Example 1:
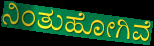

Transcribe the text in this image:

ನಿಂತುಹೋಗಿವೆ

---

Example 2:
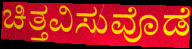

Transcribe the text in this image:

ಚಿತ್ತವಿಸುವೊಡೆ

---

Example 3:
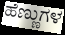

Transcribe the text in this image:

ಹೆಣ್ಣುಗಳ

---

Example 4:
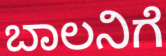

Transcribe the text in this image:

ಬಾಲನಿಗೆ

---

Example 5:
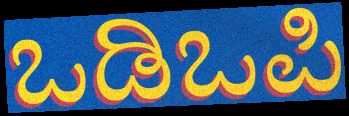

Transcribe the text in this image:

ಒಡಿಒಪಿ